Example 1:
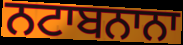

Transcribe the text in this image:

ਨਟਾਬਨਾਨਾ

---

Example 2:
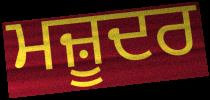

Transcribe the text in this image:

ਮਜ਼ੂਦਰ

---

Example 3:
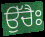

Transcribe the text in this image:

ਉੱਚੈਃ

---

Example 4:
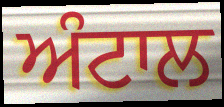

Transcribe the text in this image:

ਅੰਟਾਲ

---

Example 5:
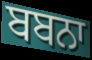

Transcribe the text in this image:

ਬਬਨਾ